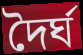
দৈৰ্ঘ